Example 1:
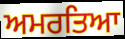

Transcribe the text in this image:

ਅਮਰਤਿਆ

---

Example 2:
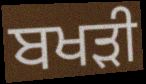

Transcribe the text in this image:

ਬਖੜੀ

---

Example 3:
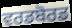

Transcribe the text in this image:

ਵਰਡਬੋਰਡ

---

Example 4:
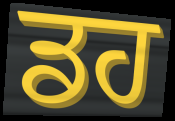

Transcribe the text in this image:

ਡਹ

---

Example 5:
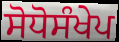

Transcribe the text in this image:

ਸੋਧੋਸੰਖੇਪ